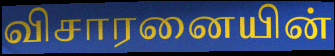
விசாரனையின்